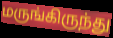
மருங்கிருந்து